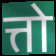
त्तो